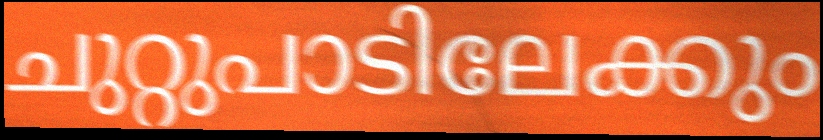
ചുറ്റുപാടിലേക്കും